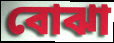
বোঝা